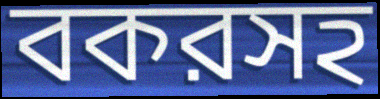
বকরসহ